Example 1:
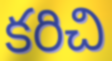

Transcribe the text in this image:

కరిచి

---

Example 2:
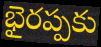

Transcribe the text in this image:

భైరప్పకు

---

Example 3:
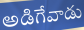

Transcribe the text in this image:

అడిగేవాడు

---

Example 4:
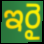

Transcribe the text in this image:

ఇరై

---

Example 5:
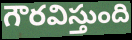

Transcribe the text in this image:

గౌరవిస్తుంది